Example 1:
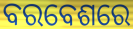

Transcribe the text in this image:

ବରବେଶରେ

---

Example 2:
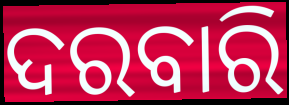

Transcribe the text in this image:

ଦରବାରି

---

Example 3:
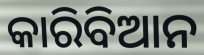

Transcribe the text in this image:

କାରିବିଆନ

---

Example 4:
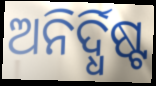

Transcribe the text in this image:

ଅନିର୍ଦ୍ଧିଷ୍ଟ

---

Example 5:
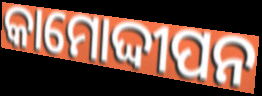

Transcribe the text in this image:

କାମୋଦ୍ଦୀପନ